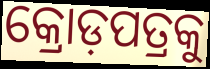
କ୍ରୋଡ଼ପତ୍ରକୁ